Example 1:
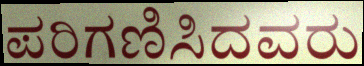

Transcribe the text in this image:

ಪರಿಗಣಿಸಿದವರು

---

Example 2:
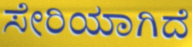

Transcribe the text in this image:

ಸೇರಿಯಾಗಿದೆ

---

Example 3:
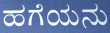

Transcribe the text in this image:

ಹಗೆಯನು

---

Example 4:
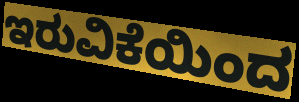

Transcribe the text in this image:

ಇರುವಿಕೆಯಿಂದ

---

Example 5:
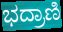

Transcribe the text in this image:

ಭದ್ರಾಣಿ